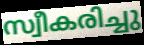
സ്വീകരിച്ചു